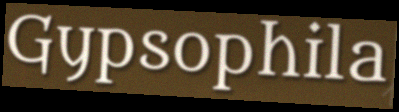
Gypsophila